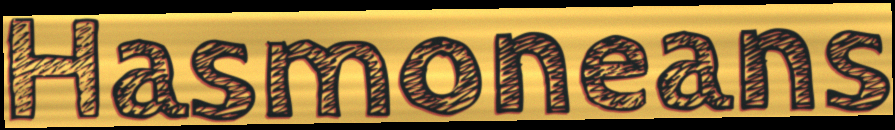
Hasmoneans